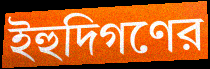
ইহুদিগণের